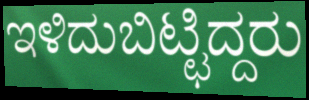
ಇಳಿದುಬಿಟ್ಟಿದ್ದರು